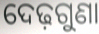
ଦେଢ଼ଗୁଣା